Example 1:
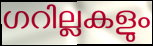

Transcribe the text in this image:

ഗറില്ലകളും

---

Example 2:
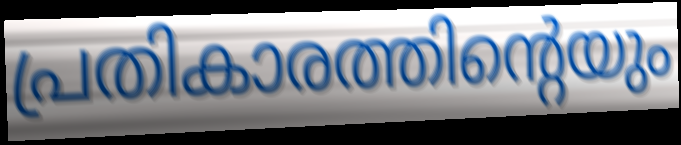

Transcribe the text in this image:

പ്രതികാരത്തിന്റെയും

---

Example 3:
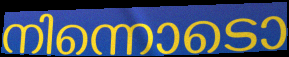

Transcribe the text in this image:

നിന്നൊടൊ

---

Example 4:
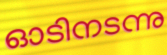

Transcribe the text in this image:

ഓടിനടന്നു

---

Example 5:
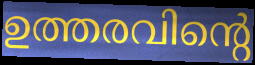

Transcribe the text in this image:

ഉത്തരവിന്റെ